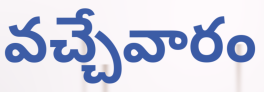
వచ్చేవారం